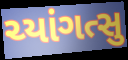
ચ્યાંગત્સુ